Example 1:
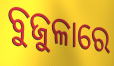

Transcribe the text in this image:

ବୁଜୁଳାରେ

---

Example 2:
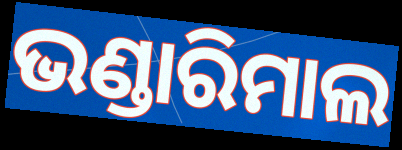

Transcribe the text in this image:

ଭଣ୍ଡାରିମାଲ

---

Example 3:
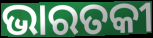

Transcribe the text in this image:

ଭାରତକୀ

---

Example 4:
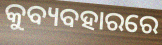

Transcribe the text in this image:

କୁବ୍ୟବହାରରେ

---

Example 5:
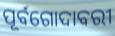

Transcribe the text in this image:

ପୂର୍ବଗୋଦାବରୀ